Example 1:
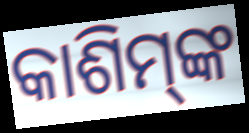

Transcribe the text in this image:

କାଶିମ୍‍ଙ୍କ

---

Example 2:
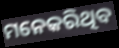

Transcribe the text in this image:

ମନେକରିଥିବ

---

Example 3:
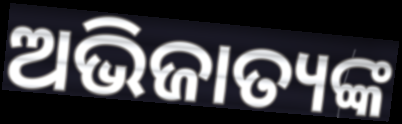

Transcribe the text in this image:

ଅଭିଜାତ୍ୟଙ୍କ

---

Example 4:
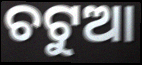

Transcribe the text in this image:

ଚଟୁଆ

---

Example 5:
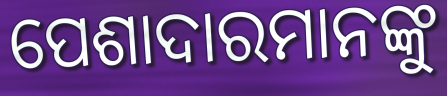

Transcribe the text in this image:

ପେଶାଦାରମାନଙ୍କୁ